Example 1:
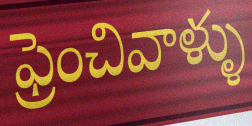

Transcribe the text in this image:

ఫ్రెంచివాళ్ళు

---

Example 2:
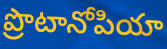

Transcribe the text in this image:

ప్రొటానోపియా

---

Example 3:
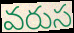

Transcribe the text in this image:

వరుస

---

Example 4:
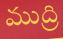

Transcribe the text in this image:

ముద్రి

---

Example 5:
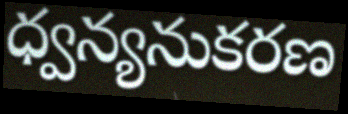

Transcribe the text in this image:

ధ్వన్యనుకరణ